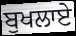
ਬੁਖਲਾਏ